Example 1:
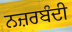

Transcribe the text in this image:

ਨਜ਼ਰਬੰਦੀ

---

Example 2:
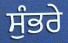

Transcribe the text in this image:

ਸੁੰਭਰੇ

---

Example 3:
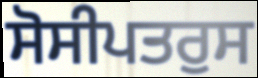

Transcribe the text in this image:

ਸੋਸੀਪਤਰੁਸ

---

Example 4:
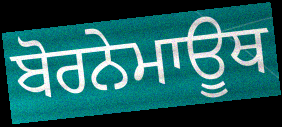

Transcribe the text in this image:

ਬੋਰਨੇਮਾਊਥ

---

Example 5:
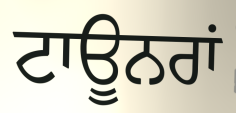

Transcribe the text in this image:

ਟਾਊਨਰਾਂ